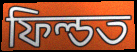
ফিল্ডত